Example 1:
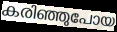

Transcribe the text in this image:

കരിഞ്ഞുപോയ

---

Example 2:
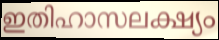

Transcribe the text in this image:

ഇതിഹാസലക്ഷ്യം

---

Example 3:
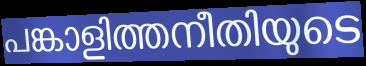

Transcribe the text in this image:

പങ്കാളിത്തനീതിയുടെ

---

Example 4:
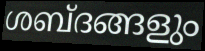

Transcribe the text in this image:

ശബ്ദങ്ങളും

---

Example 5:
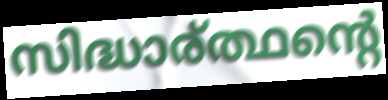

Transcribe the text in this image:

സിദ്ധാര്ത്ഥന്റെ